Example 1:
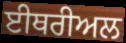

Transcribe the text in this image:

ਈਥਰੀਅਲ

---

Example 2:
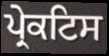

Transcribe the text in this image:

ਪ੍ਰੇਕਟਿਸ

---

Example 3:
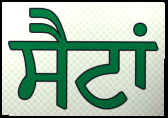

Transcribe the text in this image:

ਸੈਟਾਂ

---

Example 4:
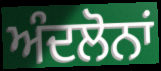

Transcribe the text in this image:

ਅੰਦਲੋਨਾਂ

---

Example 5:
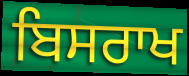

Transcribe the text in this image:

ਬਿਸਰਾਖ